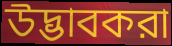
উদ্ভাবকরা